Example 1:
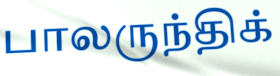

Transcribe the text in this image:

பாலருந்திக்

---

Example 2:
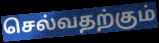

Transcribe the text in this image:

செல்வதற்கும்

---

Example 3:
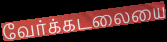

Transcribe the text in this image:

வேர்க்கடலையை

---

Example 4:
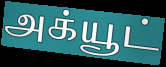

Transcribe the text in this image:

அக்யூட்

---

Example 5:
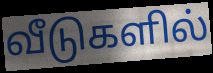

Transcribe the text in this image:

வீடுகளில்